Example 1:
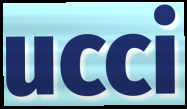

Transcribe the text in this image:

ucci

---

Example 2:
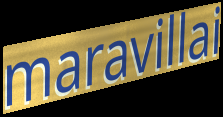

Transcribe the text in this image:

maravillai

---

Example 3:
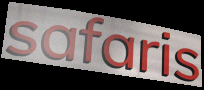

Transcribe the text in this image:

safaris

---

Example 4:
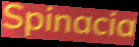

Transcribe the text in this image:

Spinacia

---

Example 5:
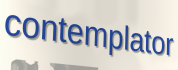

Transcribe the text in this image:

contemplator